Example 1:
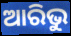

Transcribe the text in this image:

ଆରିଭୁ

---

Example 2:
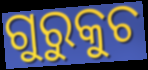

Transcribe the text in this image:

ଗୁରୁକୁଚ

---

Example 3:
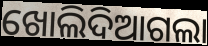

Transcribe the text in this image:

ଖୋଲିଦିଆଗଲା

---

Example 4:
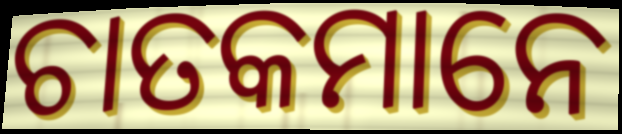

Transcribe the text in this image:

ଚାତକମାନେ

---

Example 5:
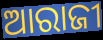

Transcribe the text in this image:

ଆରାଜୀ